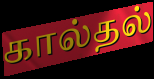
கால்தல்